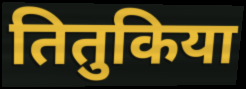
तितुकिया